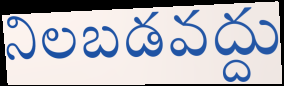
నిలబడవద్దు